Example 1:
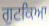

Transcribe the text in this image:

ਗੁਟਕਿਆ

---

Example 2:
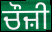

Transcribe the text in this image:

ਚੌਜ਼ੀ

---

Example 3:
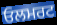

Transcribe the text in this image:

ਓਲਮਰਟ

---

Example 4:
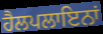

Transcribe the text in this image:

ਹੈਲਪਲਾਇਨਾਂ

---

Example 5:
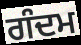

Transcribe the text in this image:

ਗੰਦਮ